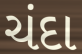
ચંદા